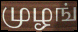
முழங்